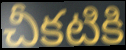
చీకటికి